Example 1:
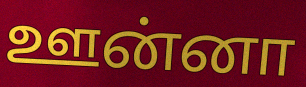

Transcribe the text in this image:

ஊன்னா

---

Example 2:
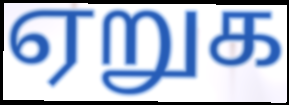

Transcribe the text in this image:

ஏறுக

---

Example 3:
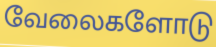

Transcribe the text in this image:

வேலைகளோடு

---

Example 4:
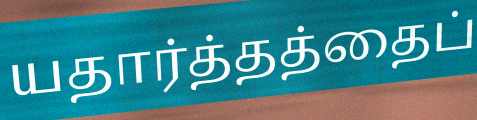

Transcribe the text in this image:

யதார்த்தத்தைப்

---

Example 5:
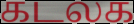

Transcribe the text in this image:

கடலக